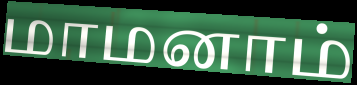
மாமனாம்